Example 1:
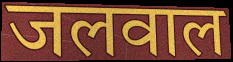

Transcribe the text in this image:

जलवाल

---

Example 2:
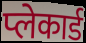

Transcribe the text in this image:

प्‍लेकार्ड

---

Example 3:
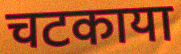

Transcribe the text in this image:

चटकाया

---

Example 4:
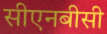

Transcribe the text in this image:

सीएनबीसी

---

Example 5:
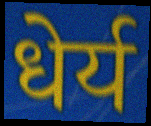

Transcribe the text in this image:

धेर्य